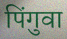
पिंगुवा